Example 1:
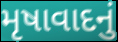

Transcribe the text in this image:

મૃષાવાદનું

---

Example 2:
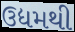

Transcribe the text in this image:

ઉદ્યમથી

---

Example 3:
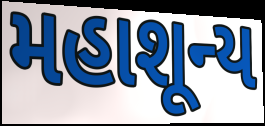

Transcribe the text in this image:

મહાશૂન્ય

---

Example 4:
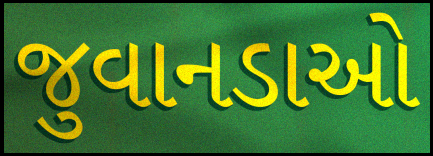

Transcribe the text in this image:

જુવાનડાઓ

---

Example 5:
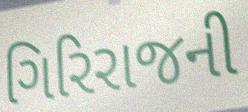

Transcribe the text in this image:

ગિરિરાજની